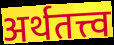
अर्थतत्त्व